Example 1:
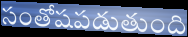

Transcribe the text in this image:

సంతోషపడుతుంది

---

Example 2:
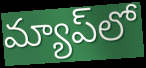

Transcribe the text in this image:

మ్యాప్‌లో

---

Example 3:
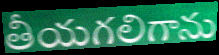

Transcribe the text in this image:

తీయగలిగాను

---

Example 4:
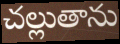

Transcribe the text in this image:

చల్లుతాను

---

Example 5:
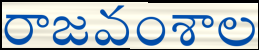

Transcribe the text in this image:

రాజవంశాల